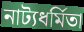
নাট্যধর্মিতা